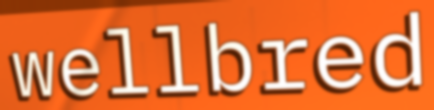
wellbred